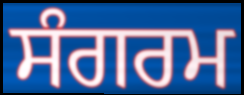
ਸੰਗਰਮ